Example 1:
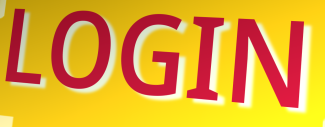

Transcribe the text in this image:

LOGIN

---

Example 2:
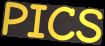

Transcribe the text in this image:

PICS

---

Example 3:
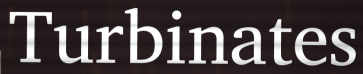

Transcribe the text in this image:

Turbinates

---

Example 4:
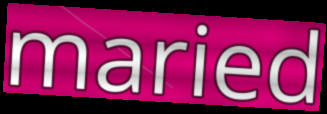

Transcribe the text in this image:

maried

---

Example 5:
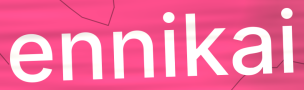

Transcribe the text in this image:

ennikai